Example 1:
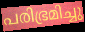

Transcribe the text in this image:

പരിഭ്രമിച്ചു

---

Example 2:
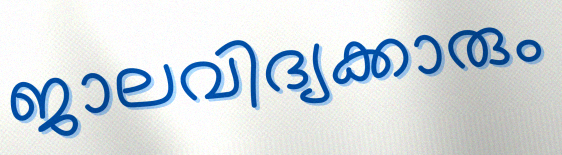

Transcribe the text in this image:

ജാലവിദ്യക്കാരും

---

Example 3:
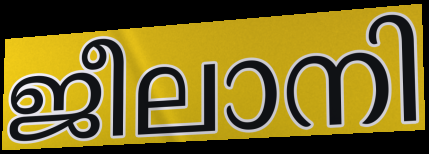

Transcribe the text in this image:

ജീലാനി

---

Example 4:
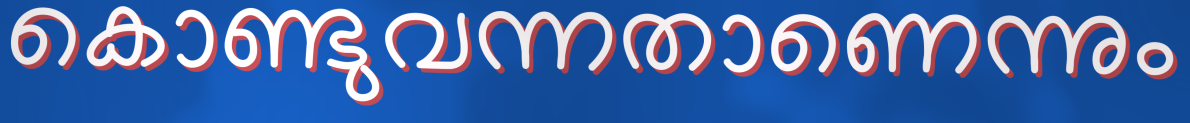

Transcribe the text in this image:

കൊണ്ടുവന്നതാണെന്നും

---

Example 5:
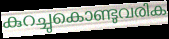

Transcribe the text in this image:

കുറച്ചുകൊണ്ടുവരിക